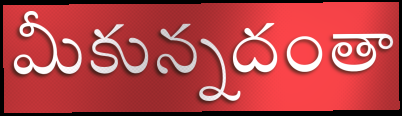
మీకున్నదంతా